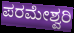
ಪರಮೇಶ್ವರಿ